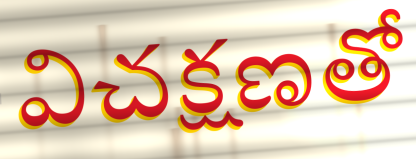
విచక్షణతో